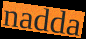
nadda